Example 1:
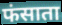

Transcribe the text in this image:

फंसाता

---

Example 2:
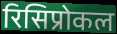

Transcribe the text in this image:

रिसिप्रोकल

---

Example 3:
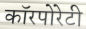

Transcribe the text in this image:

कॉरपोरेटी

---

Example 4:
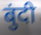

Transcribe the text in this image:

बुंदी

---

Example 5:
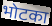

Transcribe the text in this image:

भोटका